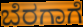
ಬೆರಗಾಗೆ